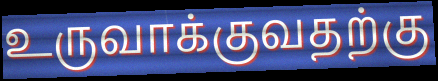
உருவாக்குவதற்கு